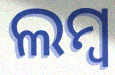
ଲମ୍ବ